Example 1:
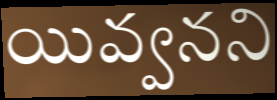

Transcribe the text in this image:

యివ్వనని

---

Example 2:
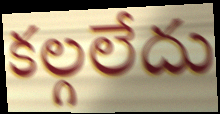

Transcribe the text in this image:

కల్గలేదు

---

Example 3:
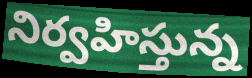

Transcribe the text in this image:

నిర్వహిస్తున్న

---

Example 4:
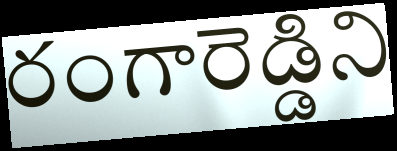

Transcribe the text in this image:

రంగారెడ్డిని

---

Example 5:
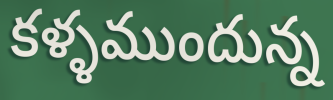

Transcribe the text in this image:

కళ్ళముందున్న